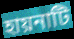
হায়নাটি